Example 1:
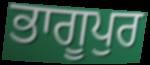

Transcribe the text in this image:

ਭਾਗੂਪੁਰ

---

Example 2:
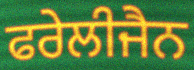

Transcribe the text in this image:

ਫਰੇਲੀਜੈਨ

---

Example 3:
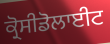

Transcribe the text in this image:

ਕ੍ਰੋਸੀਡੋਲਾਈਟ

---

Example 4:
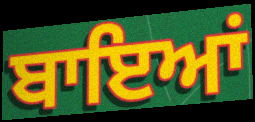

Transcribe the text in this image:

ਬਾਇਆਂ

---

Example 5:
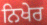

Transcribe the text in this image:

ਨਿਖੇਰ